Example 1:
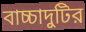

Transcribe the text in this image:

বাচ্চাদুটির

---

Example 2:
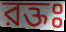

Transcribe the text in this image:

রক্তঃ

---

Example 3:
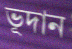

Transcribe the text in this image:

ভূদান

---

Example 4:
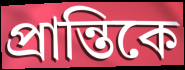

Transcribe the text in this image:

প্রান্তিকে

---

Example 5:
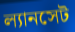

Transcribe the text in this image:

ল্যানসেট